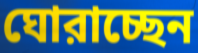
ঘোরাচ্ছেন